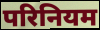
परिनियम